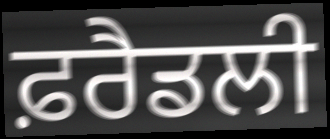
ਫ਼ਰੈਡਲੀ